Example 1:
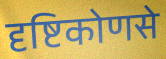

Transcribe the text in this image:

दृष्टिकोणसे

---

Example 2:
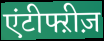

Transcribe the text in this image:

एंटीफ्ऱीज़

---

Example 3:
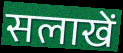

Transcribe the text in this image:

सलाखें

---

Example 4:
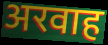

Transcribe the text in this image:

अरवाह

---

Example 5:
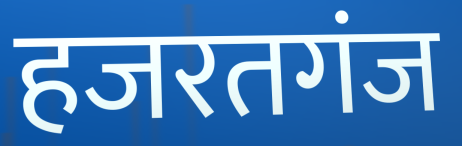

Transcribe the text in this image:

हजरतगंज